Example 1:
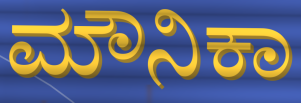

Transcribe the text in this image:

ಮೌನಿಕಾ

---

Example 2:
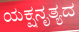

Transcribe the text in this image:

ಯಕ್ಷನೃತ್ಯದ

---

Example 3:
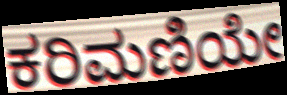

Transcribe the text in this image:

ಕರಿಮಣಿಯೇ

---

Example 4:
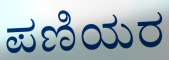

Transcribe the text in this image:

ಪಣಿಯರ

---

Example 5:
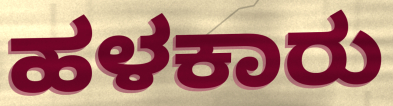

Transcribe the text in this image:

ಹಳಕಾರು